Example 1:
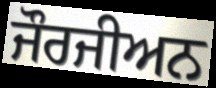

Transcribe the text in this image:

ਜੌਰਜੀਅਨ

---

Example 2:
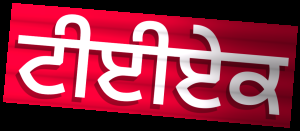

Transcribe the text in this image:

ਟੀਈਏਕ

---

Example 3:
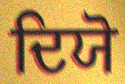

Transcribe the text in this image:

ਦਿਯੋ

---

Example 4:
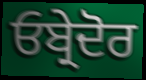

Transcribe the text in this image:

ਓਬ੍ਰੇਦੋਰ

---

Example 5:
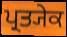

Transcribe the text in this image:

ਪ੍ਰਤ੍ਯੇਕ